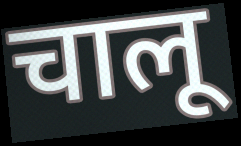
चालू